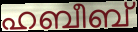
ഹബീബ്